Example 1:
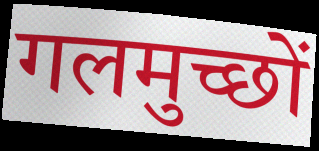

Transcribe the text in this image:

गलमुच्छों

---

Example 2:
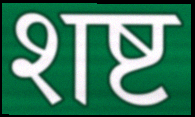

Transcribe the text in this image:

शष्ट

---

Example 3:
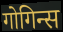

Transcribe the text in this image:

गोगिन्स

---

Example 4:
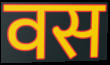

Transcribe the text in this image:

वस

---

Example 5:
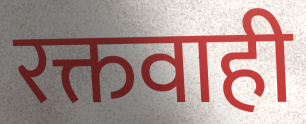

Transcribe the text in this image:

रक्तवाही